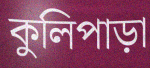
কুলিপাড়া